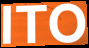
ITO